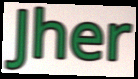
Jher